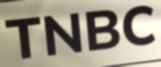
TNBC